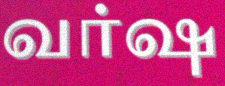
வர்ஷ